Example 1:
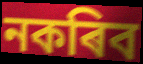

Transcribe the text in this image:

নকৰিব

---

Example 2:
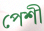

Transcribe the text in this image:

পেশী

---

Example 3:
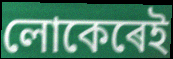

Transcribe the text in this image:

লোকেৰেই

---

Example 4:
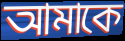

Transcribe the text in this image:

আমাকে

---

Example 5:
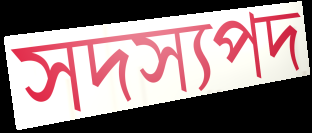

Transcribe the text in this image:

সদস্যপদ